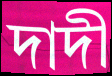
দাদী